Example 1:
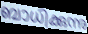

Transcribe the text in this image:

ബാധിക്കുന്നു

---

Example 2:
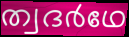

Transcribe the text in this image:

ത്വദർഥേ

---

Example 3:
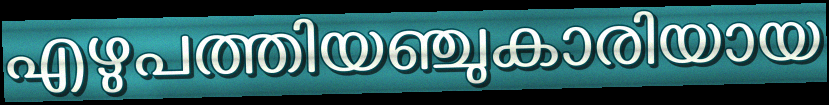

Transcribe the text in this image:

എഴുപത്തിയഞ്ചുകാരിയായ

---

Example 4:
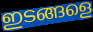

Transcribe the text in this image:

ഇടങ്ങളെ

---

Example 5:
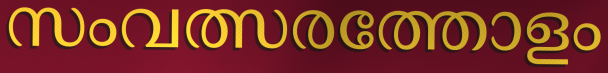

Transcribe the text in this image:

സംവത്സരത്തോളം